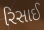
રિસાઈ